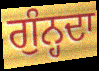
ਗੁੰਨ੍ਹਦਾ